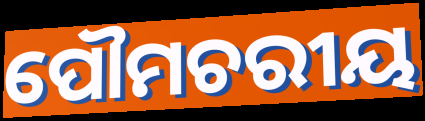
ପୌମଚରୀୟ